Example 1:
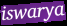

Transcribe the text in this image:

iswarya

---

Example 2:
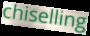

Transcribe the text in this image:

chiselling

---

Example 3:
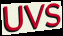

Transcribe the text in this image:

UVS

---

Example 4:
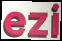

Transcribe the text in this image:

ezi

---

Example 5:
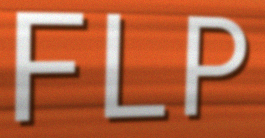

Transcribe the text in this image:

FLP